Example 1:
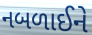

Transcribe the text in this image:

નબળાઈને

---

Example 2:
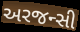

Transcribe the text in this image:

અરજન્સી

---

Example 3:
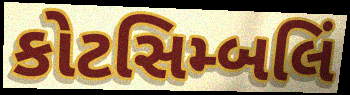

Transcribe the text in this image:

કોટસિમ્બલિં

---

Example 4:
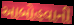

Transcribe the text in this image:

આબોહવાની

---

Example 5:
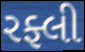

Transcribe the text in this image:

રફ્લી